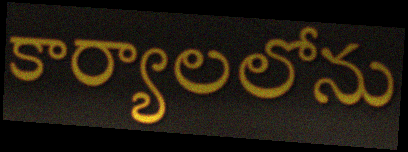
కార్యాలలోను